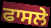
ਫਾਸਲੇ